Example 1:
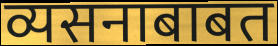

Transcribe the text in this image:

व्यसनाबाबत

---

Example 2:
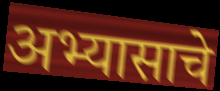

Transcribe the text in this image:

अभ्यासाचे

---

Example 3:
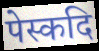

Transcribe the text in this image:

पेस्कदि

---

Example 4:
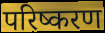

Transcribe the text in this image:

परिष्करण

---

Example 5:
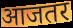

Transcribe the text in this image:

आजतर